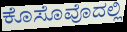
ಕೊಸೊವೊದಲ್ಲಿ